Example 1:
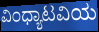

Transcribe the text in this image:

ವಿಂಧ್ಯಾಟವಿಯ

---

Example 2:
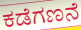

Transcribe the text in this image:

ಕಡೆಗಣನೆ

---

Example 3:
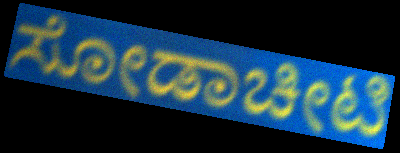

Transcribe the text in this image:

ಸೋಡಾಚೀಟಿ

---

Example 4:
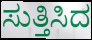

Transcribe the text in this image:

ಸುತ್ತಿಸಿದ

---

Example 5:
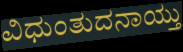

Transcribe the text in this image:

ವಿಧುಂತುದನಾಯ್ತು